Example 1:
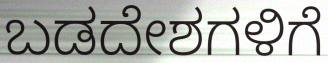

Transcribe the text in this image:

ಬಡದೇಶಗಳಿಗೆ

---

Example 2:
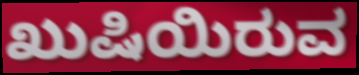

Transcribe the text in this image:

ಖುಷಿಯಿರುವ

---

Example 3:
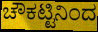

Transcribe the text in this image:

ಚೌಕಟ್ಟಿನಿಂದ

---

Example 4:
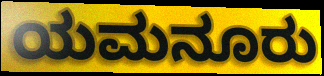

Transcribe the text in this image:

ಯಮನೂರು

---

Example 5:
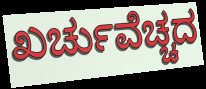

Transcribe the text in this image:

ಖರ್ಚುವೆಚ್ಚದ